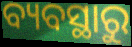
ବ୍ୟବସ୍ଥାରୁ